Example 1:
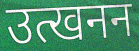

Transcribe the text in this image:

उत्खनन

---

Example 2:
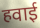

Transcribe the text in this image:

हवाई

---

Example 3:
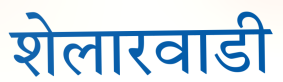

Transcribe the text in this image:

शेलारवाडी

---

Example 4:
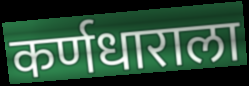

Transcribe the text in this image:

कर्णधाराला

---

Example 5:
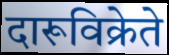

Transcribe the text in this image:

दारूविक्रेते